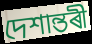
দেশান্তৰী